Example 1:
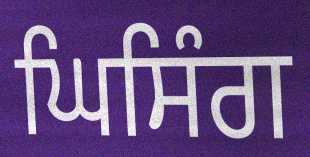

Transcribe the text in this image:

ਘਿਸਿੰਗ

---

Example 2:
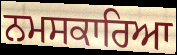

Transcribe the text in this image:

ਨਮਸਕਾਰਿਆ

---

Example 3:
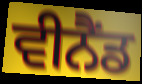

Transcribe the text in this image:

ਵੀਨੈਂਡ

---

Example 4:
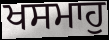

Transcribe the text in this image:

ਖਸਮਾਹੁ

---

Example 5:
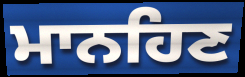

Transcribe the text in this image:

ਮਾਨਹਿਣ